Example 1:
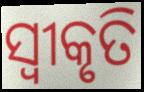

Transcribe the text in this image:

ସ୍ୱୀକୃତି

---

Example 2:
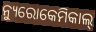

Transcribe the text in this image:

ନ୍ୟୁରୋକେମିକାଲ୍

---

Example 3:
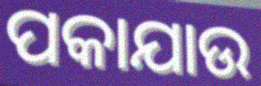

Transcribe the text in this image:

ପକାଯାଉ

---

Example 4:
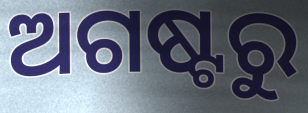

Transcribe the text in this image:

ଅଗଷ୍ଟରୁ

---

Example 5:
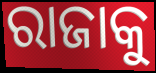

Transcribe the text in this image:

ରାଜାକୁ